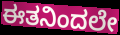
ಈತನಿಂದಲೇ